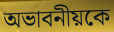
অভাবনীয়কে